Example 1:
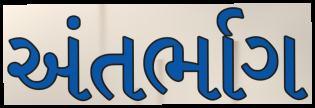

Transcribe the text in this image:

અંતર્ભાગ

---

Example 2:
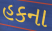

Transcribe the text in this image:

હકના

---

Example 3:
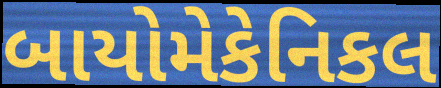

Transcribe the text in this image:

બાયોમેકેનિકલ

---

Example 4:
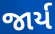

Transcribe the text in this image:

જાર્ય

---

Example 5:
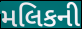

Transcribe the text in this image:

મલિકની